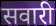
सवारी